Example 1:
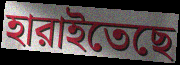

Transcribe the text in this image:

হারাইতেছে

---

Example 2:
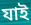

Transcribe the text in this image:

যাই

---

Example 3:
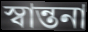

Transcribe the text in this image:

স্বান্তনা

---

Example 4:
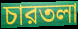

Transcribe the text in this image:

চারতলা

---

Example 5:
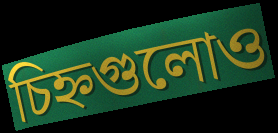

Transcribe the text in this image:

চিহ্নগুলোও